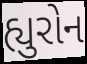
હ્યુરોન